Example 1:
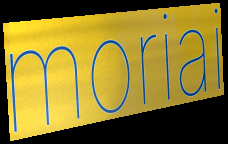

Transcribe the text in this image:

moriai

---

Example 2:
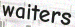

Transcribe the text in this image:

waiters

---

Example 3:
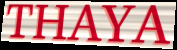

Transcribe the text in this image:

THAYA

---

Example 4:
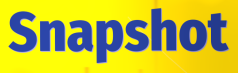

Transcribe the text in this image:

Snapshot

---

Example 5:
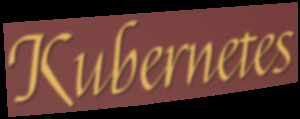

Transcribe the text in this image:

Kubernetes